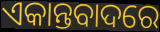
ଏକାନ୍ତବାଦରେ